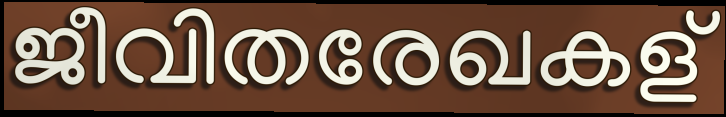
ജീവിതരേഖകള്